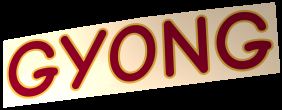
GYONG